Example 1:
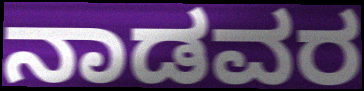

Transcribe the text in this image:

ನಾಡವರ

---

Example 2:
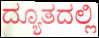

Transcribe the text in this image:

ದ್ಯೂತದಲ್ಲಿ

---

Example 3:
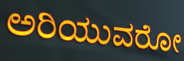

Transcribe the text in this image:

ಅರಿಯುವರೋ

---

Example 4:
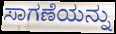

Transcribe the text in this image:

ಸಾಗಣೆಯನ್ನು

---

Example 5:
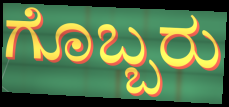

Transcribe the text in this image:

ಗೊಬ್ಬರು